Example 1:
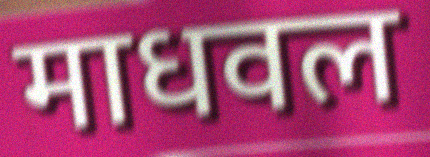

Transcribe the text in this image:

माधवल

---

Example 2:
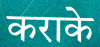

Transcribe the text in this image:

कराके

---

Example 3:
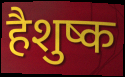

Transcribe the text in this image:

हैशुष्क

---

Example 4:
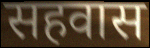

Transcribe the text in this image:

सहवास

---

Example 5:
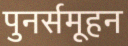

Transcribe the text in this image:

पुनर्समूहन